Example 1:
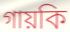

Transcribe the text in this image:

গায়কি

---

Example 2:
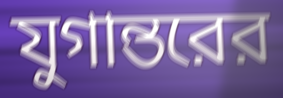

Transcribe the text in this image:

যুগান্তরের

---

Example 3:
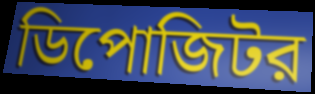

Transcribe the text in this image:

ডিপোজিটর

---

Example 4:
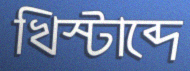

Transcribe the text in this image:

খিস্টাব্দে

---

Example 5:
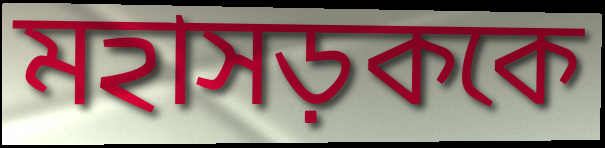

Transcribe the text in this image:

মহাসড়ককে